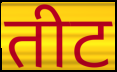
तीट